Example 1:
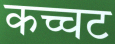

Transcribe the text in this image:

कच्चट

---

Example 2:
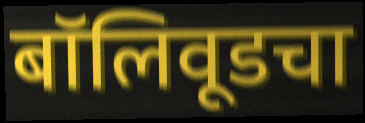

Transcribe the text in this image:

बॉलिवूडचा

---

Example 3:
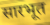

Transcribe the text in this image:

सारभूत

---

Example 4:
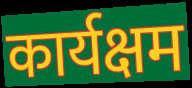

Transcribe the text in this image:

कार्यक्षम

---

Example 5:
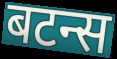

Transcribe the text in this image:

बटन्स